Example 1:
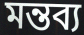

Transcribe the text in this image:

মন্তব্য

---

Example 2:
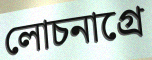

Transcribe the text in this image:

লোচনাগ্রে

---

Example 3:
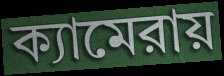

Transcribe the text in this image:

ক্যামেরায়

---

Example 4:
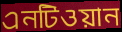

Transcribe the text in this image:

এনটিওয়ান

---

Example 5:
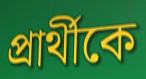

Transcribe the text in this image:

প্রার্থীকে